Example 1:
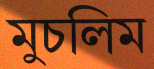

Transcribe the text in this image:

মুচলিম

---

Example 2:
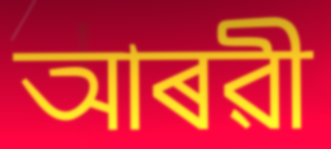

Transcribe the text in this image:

আৰৱী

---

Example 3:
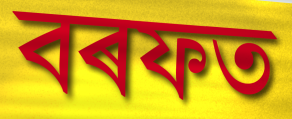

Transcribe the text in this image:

বৰফত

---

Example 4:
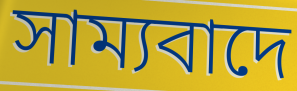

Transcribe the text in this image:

সাম্যবাদে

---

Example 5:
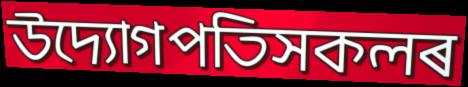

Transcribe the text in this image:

উদ্যোগপতিসকলৰ